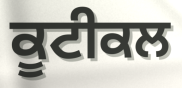
ਕੂਟੀਕਲ